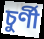
চুর্ণী